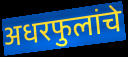
अधरफुलांचे